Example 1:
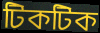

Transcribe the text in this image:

টিকটিক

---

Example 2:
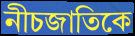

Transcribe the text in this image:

নীচজাতিকে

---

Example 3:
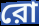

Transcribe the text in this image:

রো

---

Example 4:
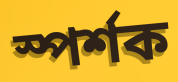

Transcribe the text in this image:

স্পর্শক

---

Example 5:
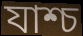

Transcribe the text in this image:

যাশ্চ